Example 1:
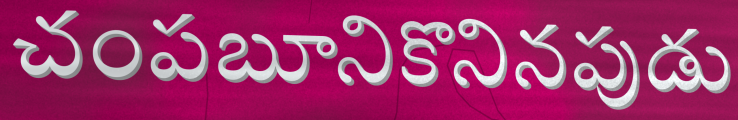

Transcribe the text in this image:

చంపబూనికొనినపుడు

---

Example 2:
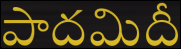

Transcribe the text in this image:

పాదమిదీ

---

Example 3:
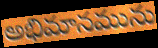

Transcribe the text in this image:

అభిమానమును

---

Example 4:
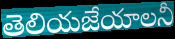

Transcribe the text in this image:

తెలియజేయాలనీ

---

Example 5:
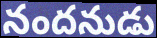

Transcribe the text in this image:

నందనుడు